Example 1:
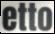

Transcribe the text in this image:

etto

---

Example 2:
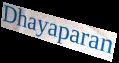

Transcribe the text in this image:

Dhayaparan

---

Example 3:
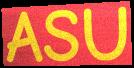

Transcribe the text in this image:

ASU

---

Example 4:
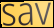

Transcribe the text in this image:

sav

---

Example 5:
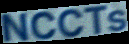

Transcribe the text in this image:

NCCTs